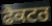
ਫੈਕਟਰ